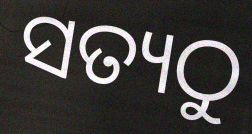
ସତ୍ୟଠୁ